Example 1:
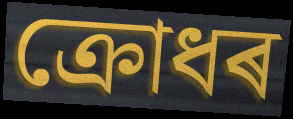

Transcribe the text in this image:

ক্ৰোধৰ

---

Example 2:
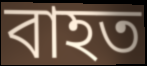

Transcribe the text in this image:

বাহত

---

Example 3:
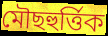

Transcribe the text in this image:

মৌছহুৰ্ত্তিক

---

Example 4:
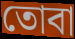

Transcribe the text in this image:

তোবা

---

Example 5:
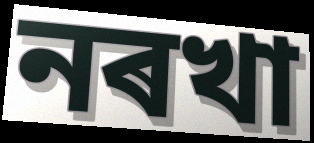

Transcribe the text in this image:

নৰখা